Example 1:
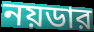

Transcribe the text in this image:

নয়ডার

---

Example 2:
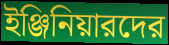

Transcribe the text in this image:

ইঞ্জিনিয়ারদের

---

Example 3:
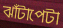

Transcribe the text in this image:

ঝাঁটাপেটা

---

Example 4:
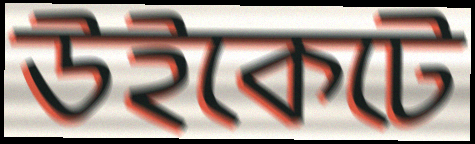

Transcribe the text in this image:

উইকেটে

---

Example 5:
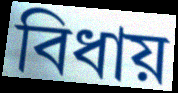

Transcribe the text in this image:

বিধায়